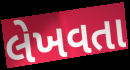
લેખવતા